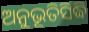
ଅନୁଭୂତିସିଦ୍ଧି